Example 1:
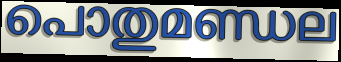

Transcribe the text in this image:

പൊതുമണ്ഡല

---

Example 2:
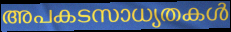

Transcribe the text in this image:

അപകടസാധ്യതകൾ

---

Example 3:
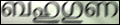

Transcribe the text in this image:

ബഹുഗുണ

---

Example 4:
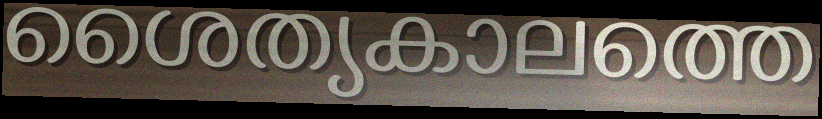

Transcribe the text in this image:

ശൈത്യകാലത്തെ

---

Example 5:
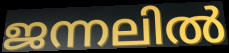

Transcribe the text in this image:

ജന്നലിൽ